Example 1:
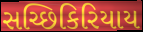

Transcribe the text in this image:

સચ્છિકિરિયાય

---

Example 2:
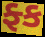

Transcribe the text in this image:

ફ્ક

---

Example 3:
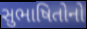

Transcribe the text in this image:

સુભાષિતોનો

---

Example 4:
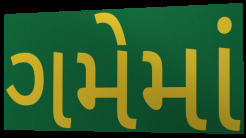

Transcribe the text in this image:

ગમેમાં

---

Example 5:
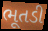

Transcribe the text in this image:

ભૂતડી